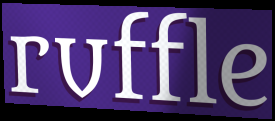
ruffle